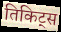
तिकिट्स